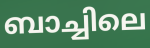
ബാച്ചിലെ